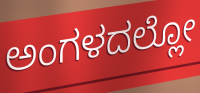
ಅಂಗಳದಲ್ಲೋ